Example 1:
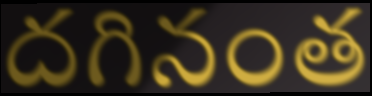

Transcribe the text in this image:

దగినంత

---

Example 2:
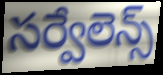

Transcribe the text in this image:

సర్వేలెన్స్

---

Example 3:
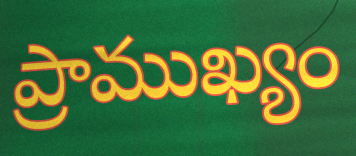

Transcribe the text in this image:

ప్రాముఖ్యం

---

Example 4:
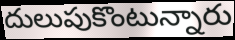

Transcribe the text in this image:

దులుపుకొంటున్నారు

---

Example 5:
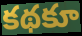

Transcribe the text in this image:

కథకూ